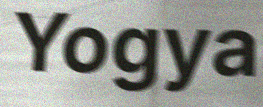
Yogya